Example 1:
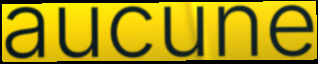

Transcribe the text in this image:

aucune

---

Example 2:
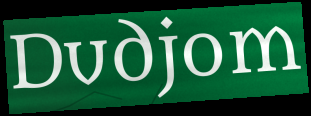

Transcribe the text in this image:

Dudjom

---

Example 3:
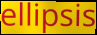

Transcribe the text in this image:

ellipsis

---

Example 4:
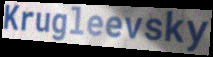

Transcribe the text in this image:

Krugleevsky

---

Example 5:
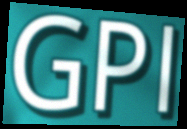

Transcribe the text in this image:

GPI